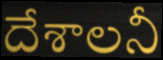
దేశాలనీ